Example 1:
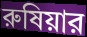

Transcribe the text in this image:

রুষিয়ার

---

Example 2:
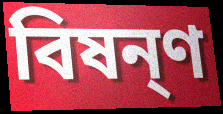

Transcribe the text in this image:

বিষন্ণ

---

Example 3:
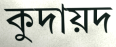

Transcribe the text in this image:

কুদায়দ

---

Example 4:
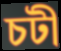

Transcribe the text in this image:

চটী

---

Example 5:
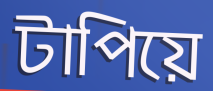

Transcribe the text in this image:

টাপিয়ে